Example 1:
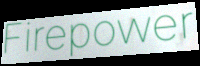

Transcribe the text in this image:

Firepower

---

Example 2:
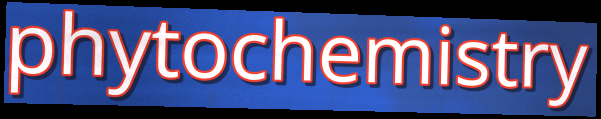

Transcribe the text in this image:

phytochemistry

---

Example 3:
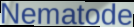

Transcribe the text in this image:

Nematode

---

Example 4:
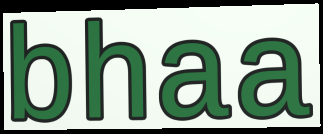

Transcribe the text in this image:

bhaa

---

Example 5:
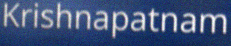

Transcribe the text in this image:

Krishnapatnam